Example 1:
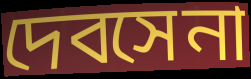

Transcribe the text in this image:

দেবসেনা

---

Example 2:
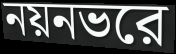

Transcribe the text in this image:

নয়নভরে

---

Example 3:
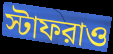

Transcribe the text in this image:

স্টাফরাও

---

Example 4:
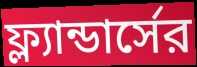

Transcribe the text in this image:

ফ্ল্যান্ডার্সের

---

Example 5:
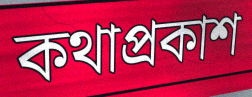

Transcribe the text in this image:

কথাপ্রকাশ